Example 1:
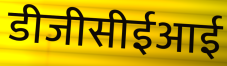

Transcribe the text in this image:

डीजीसीईआई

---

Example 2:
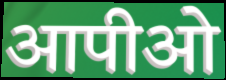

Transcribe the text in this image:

आपीओ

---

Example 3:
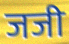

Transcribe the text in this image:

जजी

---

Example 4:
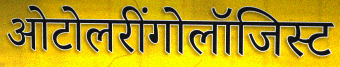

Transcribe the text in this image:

ओटोलरींगोलॉजिस्ट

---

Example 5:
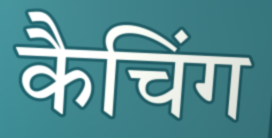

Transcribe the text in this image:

कैचिंग